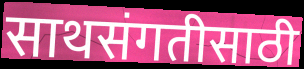
साथसंगतीसाठी